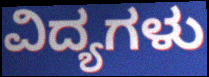
ವಿದ್ಯಗಳು